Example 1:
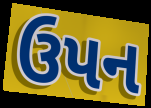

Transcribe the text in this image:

ઉપન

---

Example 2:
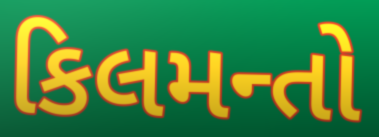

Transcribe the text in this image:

કિલમન્તો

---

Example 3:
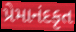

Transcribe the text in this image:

પ્રેમાનંદકૃત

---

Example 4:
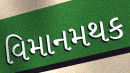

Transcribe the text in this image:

વિમાનમથક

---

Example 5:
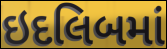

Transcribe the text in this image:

ઇદલિબમાં